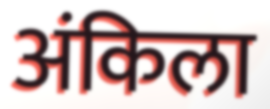
अंकिला